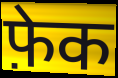
फ़ेक